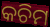
କଚିମ